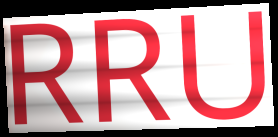
RRU